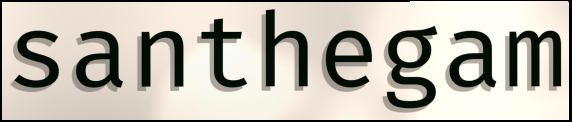
santhegam